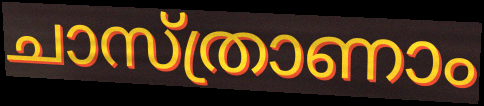
ചാസ്ത്രാണാം